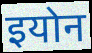
इयोन